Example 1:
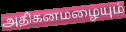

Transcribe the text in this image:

அதிகனமழையும்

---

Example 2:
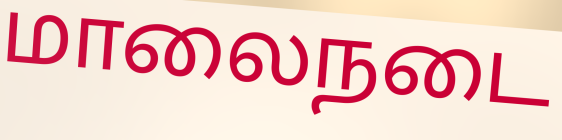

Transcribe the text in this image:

மாலைநடை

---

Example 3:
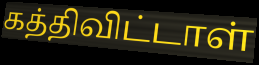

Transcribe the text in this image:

கத்திவிட்டாள்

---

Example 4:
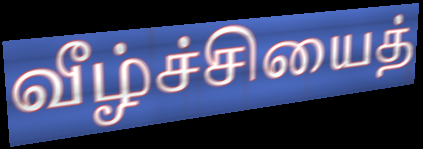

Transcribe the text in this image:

வீழ்ச்சியைத்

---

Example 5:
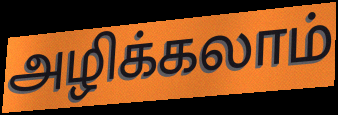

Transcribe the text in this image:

அழிக்கலாம்